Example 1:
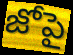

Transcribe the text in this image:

జోపై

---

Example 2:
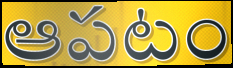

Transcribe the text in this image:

ఆపటం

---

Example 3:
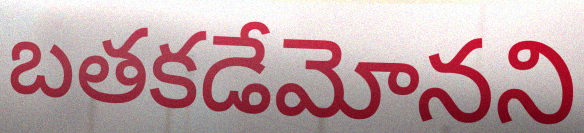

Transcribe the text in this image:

బతకడేమోనని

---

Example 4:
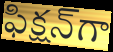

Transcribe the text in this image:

ఫిక్షన్‌గా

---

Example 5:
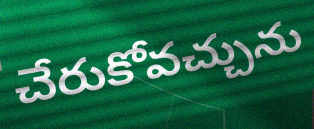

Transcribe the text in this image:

చేరుకోవచ్చును